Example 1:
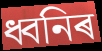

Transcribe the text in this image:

ধ্বনিৰ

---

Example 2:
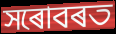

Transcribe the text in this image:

সৰোবৰত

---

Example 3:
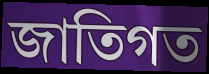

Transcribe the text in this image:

জাতিগত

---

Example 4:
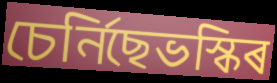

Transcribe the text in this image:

চেৰ্নিছেভস্কিৰ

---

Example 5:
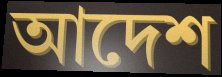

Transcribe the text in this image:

আদেশ